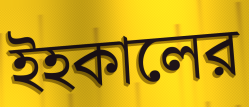
ইহকালের